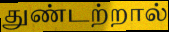
துண்டற்றால்